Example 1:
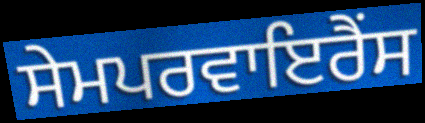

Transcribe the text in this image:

ਸੇਮਪਰਵਾਇਰੈਂਸ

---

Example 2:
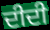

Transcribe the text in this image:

ਦੀਦੀ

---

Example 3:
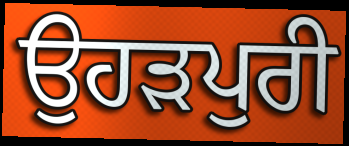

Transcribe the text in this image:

ਉਹੜਪੁਰੀ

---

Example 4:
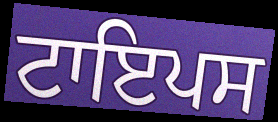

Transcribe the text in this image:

ਟਾਇਪਸ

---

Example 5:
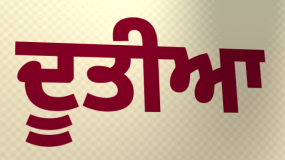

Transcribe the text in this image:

ਦੂਤੀਆ